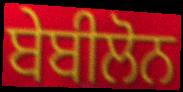
ਬੇਬੀਲੋਨ